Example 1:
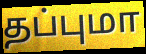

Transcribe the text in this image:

தப்புமா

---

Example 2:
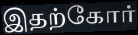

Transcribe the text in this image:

இதற்கோர்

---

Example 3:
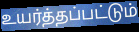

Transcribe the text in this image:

உயர்த்தப்பட்டும்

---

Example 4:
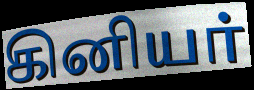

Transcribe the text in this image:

கினியர்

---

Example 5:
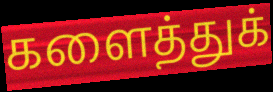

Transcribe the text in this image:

களைத்துக்